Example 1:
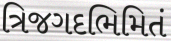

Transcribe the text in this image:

ત્રિજગદભિમિતં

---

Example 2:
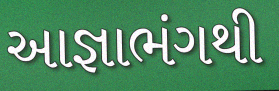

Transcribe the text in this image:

આજ્ઞાભંગથી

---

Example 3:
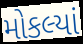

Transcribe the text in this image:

મોકલ્યાં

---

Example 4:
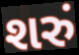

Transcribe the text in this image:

શરું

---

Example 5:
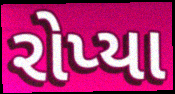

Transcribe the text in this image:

રોપ્યા